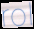
rol